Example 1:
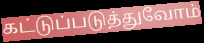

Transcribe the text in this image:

கட்டுப்படுத்துவோம்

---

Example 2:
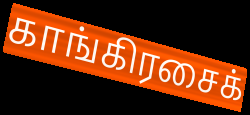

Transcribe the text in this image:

காங்கிரசைக்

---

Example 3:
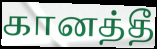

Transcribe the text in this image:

கானத்தீ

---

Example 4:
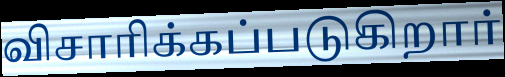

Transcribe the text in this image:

விசாரிக்கப்படுகிறார்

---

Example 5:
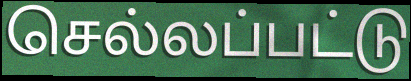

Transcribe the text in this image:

செல்லப்பட்டு